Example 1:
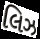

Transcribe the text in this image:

લિઝ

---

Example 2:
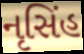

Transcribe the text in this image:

નૃસિંહ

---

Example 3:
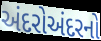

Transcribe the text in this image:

અંદરોઅંદરનો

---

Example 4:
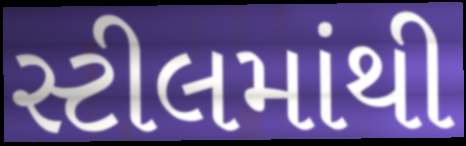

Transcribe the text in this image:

સ્ટીલમાંથી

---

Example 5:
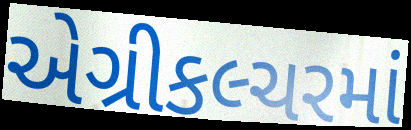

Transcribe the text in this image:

એગ્રીકલ્ચરમાં